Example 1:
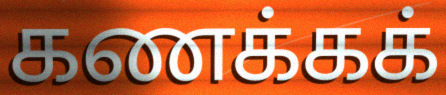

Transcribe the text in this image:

கணக்கக்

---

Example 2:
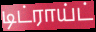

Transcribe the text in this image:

டிட்ராய்ட்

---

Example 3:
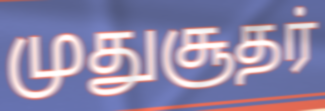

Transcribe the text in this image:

முதுசூதர்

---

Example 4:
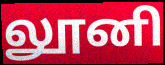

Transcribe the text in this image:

லூனி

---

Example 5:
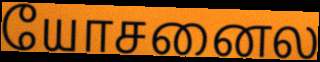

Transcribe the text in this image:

யோசனைல